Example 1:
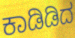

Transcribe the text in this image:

ಕಾಡಿಡಿದ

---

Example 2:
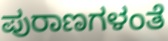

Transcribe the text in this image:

ಪುರಾಣಗಳಂತೆ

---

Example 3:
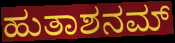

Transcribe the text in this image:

ಹುತಾಶನಮ್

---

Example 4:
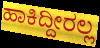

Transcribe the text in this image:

ಹಾಕಿದ್ದೀರಲ್ಲ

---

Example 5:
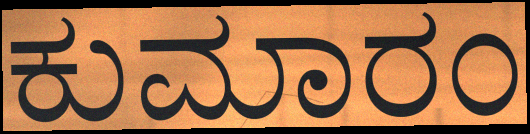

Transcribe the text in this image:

ಕುಮಾರಂ